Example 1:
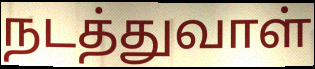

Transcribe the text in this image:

நடத்துவாள்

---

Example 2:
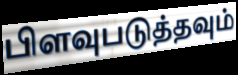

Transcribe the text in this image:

பிளவுபடுத்தவும்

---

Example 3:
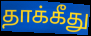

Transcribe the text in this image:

தாக்கீது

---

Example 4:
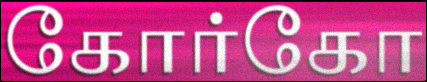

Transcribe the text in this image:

கோர்கோ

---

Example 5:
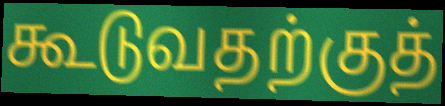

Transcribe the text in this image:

கூடுவதற்குத்